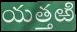
యత్తఱి